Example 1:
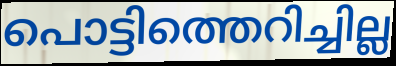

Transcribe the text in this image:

പൊട്ടിത്തെറിച്ചില്ല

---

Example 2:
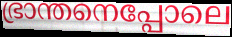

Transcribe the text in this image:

ഭ്രാന്തനെപ്പോലെ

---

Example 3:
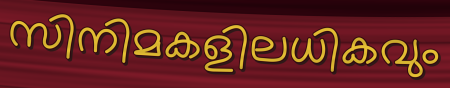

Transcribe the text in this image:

സിനിമകളിലധികവും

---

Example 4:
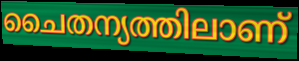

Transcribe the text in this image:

ചൈതന്യത്തിലാണ്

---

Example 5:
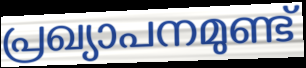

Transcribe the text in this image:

പ്രഖ്യാപനമുണ്ട്